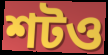
শটও